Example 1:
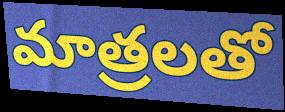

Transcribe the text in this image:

మాత్రలతో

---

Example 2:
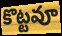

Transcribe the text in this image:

కొట్టవూ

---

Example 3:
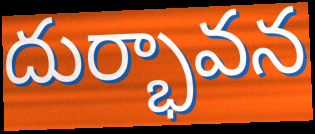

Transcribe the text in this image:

దుర్భావన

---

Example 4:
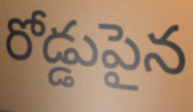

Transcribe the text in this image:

రోడ్డుపైన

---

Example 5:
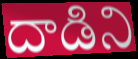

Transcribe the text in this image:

దాడిని